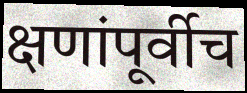
क्षणांपूर्वीच